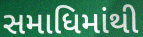
સમાધિમાંથી